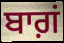
ਬਾਗ਼ਂ